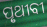
ପୃଥୀବୀ